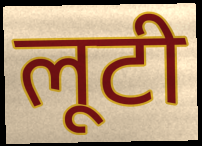
लूटी